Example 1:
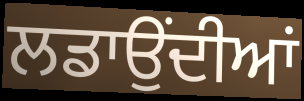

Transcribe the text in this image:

ਲਡਾਉਂਦੀਆਂ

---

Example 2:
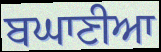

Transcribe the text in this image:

ਬਘਾਣੀਆ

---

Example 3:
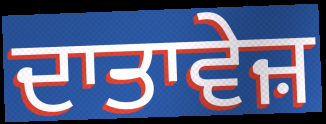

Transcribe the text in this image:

ਦਾਤਾਵੇਜ਼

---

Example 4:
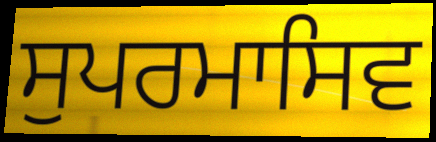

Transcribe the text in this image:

ਸੁਪਰਮਾਸਿਵ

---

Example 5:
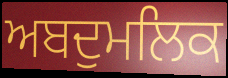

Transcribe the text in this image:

ਅਬਦੁਮਲਿਕ